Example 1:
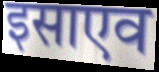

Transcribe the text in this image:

इसाएव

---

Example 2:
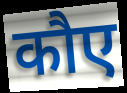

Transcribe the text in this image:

कौए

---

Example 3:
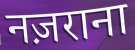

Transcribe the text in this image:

नज़राना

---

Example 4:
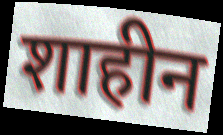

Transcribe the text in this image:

शाहीन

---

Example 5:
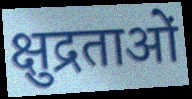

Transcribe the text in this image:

क्षुद्रताओं